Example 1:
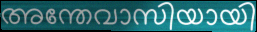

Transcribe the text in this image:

അന്തേവാസിയായി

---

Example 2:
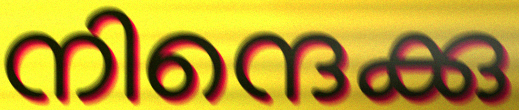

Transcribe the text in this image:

നിന്ദെക്കു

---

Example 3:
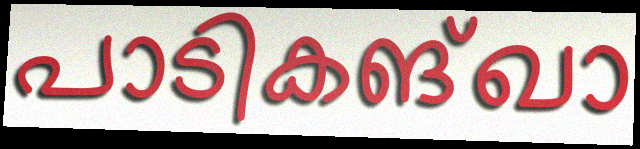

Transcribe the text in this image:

പാടികങ്ഖാ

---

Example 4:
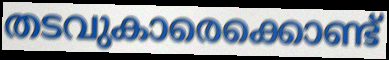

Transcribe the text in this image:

തടവുകാരെക്കൊണ്ട്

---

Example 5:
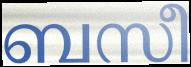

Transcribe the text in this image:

ബസീ